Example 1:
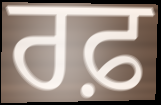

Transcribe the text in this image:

ਰਫ਼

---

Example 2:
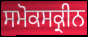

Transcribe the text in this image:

ਸਮੋਕਸਕ੍ਰੀਨ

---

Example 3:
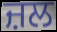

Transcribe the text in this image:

ਜ਼ਲ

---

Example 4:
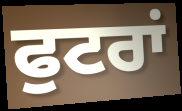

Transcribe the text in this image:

ਫੁਟਰਾਂ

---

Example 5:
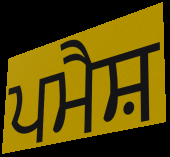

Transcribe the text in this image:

ਪਮੈਸ਼